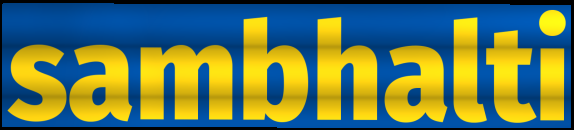
sambhalti